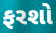
ફરશો